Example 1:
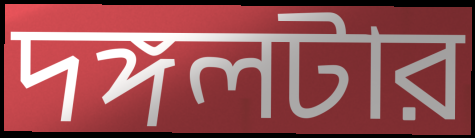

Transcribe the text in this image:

দঙ্গলটার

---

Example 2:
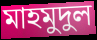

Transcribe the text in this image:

মাহমুদুল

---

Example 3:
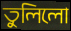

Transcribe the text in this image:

তুলিলো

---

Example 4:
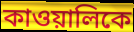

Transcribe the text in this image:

কাওয়ালিকে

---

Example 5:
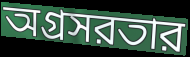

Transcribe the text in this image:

অগ্রসরতার